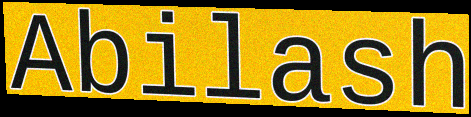
Abilash